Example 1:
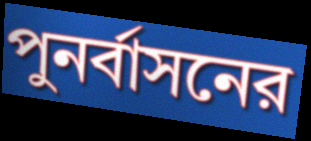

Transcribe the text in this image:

পুনর্বাসনের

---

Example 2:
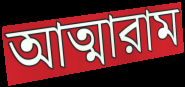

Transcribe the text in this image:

আত্মারাম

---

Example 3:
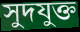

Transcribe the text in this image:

সুদযুক্ত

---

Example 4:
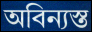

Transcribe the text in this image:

অবিন্যস্ত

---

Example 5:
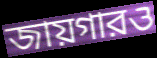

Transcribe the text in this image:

জায়গারও